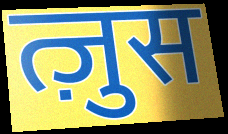
त्ज़ुस